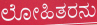
ಲೋಹಿತರನು